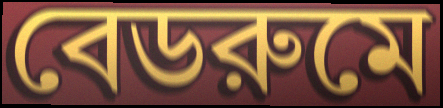
বেডরুমে